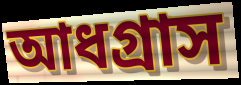
আধগ্রাস